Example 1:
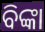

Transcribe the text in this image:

ବିଙ୍କା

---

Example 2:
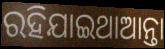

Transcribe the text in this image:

ରହିଯାଇଥାଆନ୍ତା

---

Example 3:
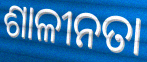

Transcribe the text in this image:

ଶାଳୀନତା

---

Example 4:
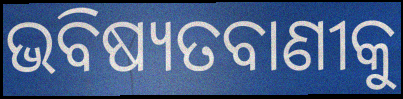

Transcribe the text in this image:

ଭବିଷ୍ୟତବାଣୀକୁ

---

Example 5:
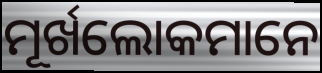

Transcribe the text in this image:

ମୂର୍ଖଲୋକମାନେ